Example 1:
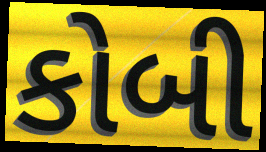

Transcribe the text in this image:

કોબી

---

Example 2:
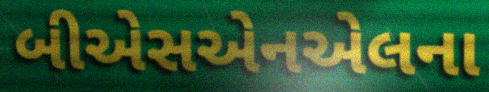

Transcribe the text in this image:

બીએસએનએલના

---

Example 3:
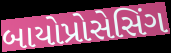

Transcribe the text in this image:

બાયોપ્રોસેસિંગ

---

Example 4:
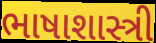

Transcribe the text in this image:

ભાષાશાસ્ત્રી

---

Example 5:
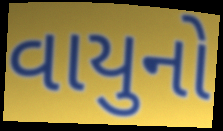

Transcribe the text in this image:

વાયુનો